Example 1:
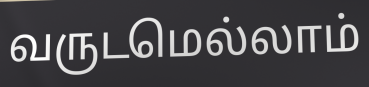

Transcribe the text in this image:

வருடமெல்லாம்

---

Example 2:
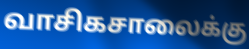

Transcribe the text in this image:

வாசிகசாலைக்கு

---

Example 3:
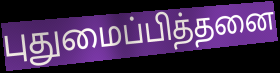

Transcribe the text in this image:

புதுமைப்பித்தனை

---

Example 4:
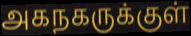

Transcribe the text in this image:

அகநகருக்குள்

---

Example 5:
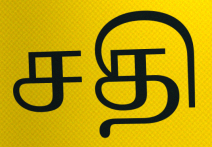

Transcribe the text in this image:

சதி